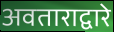
अवताराद्वारे